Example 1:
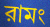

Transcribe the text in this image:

রামং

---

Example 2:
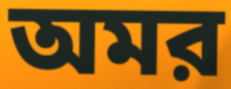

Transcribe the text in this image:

অমর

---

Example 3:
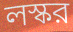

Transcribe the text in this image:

লস্কর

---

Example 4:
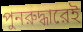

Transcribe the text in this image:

পুনরুদ্ধারেই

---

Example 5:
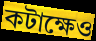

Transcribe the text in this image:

কটাক্ষেও